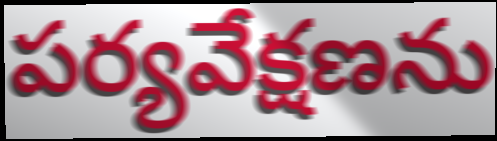
పర్యవేక్షణను